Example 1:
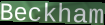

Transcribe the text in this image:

Beckham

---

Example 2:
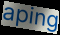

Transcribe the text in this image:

aping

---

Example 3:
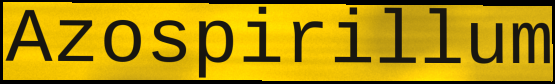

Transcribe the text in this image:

Azospirillum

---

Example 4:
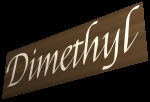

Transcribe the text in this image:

Dimethyl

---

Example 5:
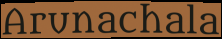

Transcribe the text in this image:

Arunachala